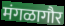
मंगळागौर